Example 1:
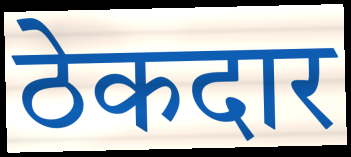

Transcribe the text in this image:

ठेकदार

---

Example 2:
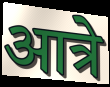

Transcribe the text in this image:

आत्रे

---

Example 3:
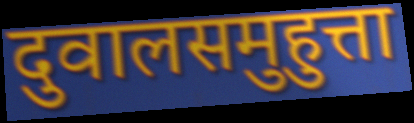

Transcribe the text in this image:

दुवालसमुहुत्ता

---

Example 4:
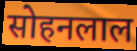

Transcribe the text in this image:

सोहनलाल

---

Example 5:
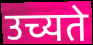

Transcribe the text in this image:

उच्यते